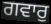
ਗਵਾਰੁ